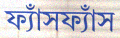
ফ্যাঁসফ্যাঁস